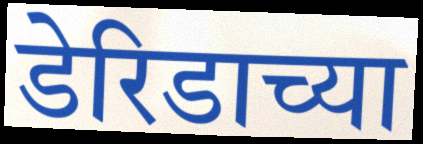
डेरिडाच्या